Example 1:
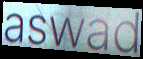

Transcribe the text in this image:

aswad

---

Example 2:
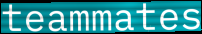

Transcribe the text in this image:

teammates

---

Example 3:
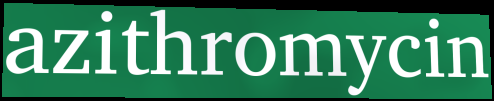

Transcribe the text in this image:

azithromycin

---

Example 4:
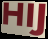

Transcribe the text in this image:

HIJ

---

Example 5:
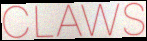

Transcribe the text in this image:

CLAWS